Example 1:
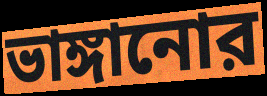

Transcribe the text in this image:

ভাঙ্গানোর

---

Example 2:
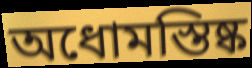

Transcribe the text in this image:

অধোমস্তিষ্ক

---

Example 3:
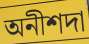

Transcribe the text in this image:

অনীশদা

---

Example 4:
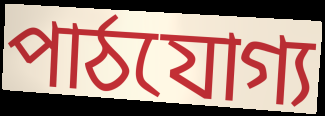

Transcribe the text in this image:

পাঠযোগ্য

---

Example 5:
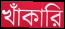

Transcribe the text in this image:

খাঁকারি